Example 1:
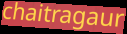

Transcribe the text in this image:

chaitragaur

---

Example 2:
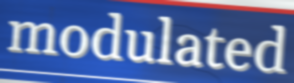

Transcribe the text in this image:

modulated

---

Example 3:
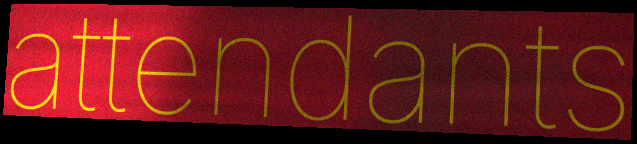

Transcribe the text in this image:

attendants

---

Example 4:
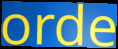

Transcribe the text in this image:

orde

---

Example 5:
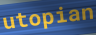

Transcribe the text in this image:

utopian